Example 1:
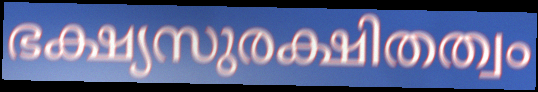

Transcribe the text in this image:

ഭക്ഷ്യസുരക്ഷിതത്വം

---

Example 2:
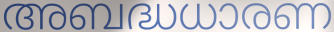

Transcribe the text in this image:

അബദ്ധധാരണ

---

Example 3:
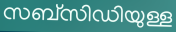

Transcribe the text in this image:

സബ്സിഡിയുള്ള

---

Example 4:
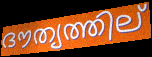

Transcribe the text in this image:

ദൗത്യത്തില്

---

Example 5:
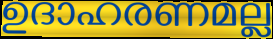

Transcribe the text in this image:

ഉദാഹരണമല്ല